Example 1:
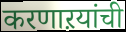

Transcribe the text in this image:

करणाऱयांची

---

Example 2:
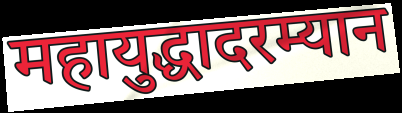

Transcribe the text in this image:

महायुद्धादरम्यान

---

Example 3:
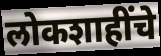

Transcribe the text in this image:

लोकशाहींचे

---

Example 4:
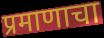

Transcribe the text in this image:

प्रमाणाचा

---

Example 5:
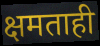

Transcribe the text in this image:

क्षमताही